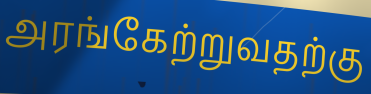
அரங்கேற்றுவதற்கு